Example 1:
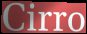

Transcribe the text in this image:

Cirro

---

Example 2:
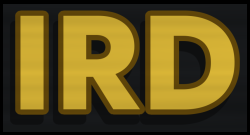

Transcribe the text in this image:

IRD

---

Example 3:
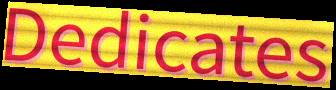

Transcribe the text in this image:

Dedicates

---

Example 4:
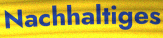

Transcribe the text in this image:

Nachhaltiges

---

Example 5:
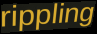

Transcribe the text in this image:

rippling